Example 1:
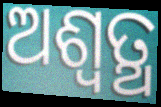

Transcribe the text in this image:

ଅଶ୍ବତ୍ଥ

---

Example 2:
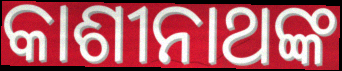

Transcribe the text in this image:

କାଶୀନାଥଙ୍କ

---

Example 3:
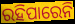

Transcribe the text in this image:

ରହିପାରେନି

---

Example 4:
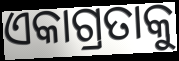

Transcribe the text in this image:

ଏକାଗ୍ରତାକୁ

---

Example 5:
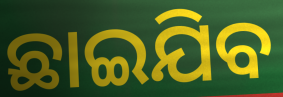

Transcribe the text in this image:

ଛାଇଯିବ